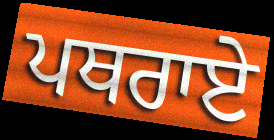
ਪਥਰਾਏ